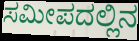
ಸಮೀಪದಲ್ಲಿನ